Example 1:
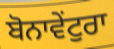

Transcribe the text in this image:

ਬੋਨਾਵੇਂਟੁਰਾ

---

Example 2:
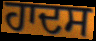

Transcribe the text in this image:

ਹਾਦਸ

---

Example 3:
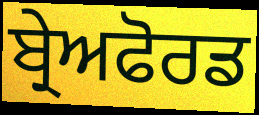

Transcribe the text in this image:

ਬ੍ਰੇਅਫੋਰਡ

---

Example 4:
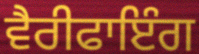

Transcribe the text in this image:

ਵੈਰੀਫਾਇੰਗ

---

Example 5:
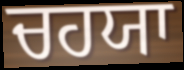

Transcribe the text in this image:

ਚਹਯਾ